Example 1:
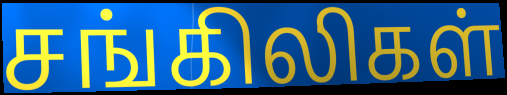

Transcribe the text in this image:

சங்கிலிகள்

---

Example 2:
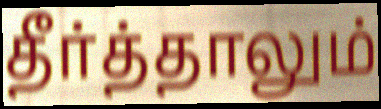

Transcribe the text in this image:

தீர்த்தாலும்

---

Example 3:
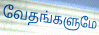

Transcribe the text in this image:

வேதங்களுமே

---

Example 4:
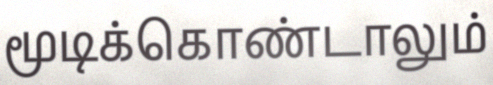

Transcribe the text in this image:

மூடிக்கொண்டாலும்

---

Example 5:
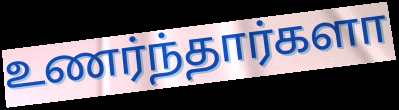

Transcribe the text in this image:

உணர்ந்தார்களா